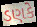
ડણકે